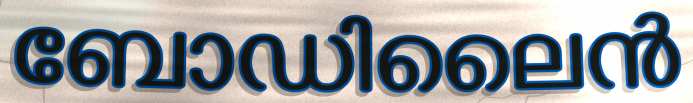
ബോഡിലൈൻ